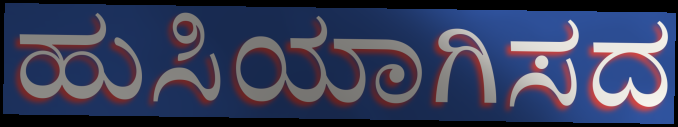
ಹುಸಿಯಾಗಿಸದ